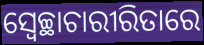
ସ୍ଵେଚ୍ଛାଚାରୀରିତାରେ